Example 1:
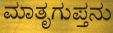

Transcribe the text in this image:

ಮಾತೃಗುಪ್ತನು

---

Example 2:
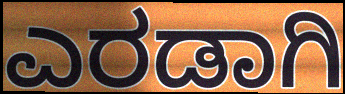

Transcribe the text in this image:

ಎರಡಾಗಿ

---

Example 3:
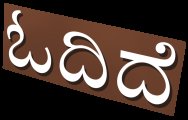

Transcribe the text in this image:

ಓದಿದೆ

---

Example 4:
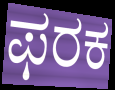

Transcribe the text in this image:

ಫರಕ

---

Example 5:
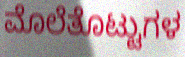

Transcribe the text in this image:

ಮೊಲೆತೊಟ್ಟುಗಳ